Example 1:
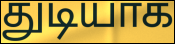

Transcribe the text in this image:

துடியாக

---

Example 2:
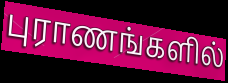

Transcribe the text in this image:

புராணங்களில்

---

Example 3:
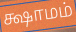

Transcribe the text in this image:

க்ஷாமம்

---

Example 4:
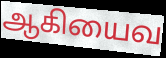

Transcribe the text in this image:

ஆகியைவ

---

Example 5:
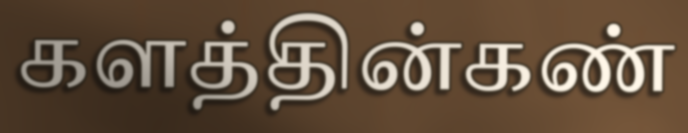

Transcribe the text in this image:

களத்தின்கண்